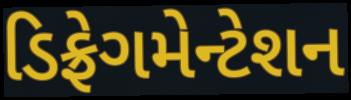
ડિફ્રેગમેન્ટેશન